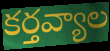
కర్తవ్యాల